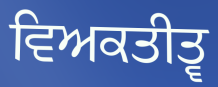
ਵਿਅਕਤੀਤ੍ਵ